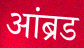
आंब्रड